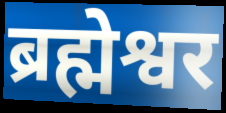
ब्रह्मेश्वर